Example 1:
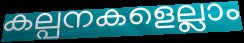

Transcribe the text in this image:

കല്പനകളെല്ലാം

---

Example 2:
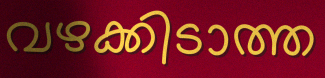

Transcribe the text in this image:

വഴക്കിടാത്ത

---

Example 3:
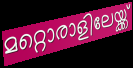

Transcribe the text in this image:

മറ്റൊരാളിലേയ്ക്ക്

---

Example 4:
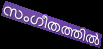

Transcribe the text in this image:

സംഗീതത്തിൽ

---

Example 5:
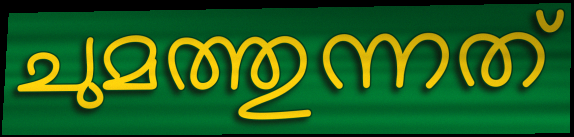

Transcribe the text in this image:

ചുമത്തുന്നത്